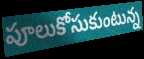
పూలుకోసుకుంటున్న